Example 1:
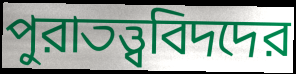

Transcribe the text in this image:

পুরাতত্ত্ববিদদের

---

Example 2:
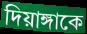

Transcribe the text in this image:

দিয়াঙ্গাকে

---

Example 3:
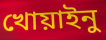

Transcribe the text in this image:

খোয়াইনু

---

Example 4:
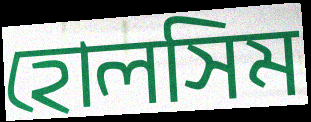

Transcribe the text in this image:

হোলসিম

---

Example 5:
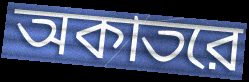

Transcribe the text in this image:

অকাতরে